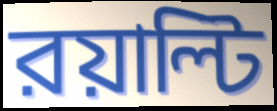
রয়াল্টি